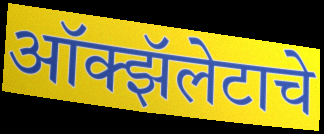
ऑक्झॅलेटाचे